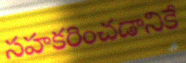
సహకరించడానికే